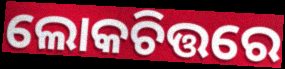
ଲୋକଚିତ୍ତରେ